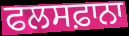
ਫਲਸਫ਼ਾਨਾ